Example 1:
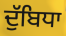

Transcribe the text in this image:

ਦੁੱਬਿਧਾ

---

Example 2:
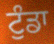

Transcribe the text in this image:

ਟੁੰਡਾ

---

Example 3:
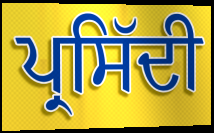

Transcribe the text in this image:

ਪ੍ਰਸਿੱਦੀ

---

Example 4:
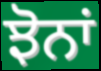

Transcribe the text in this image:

ਝੋਨਾਂ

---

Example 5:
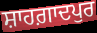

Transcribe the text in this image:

ਸ਼ਾਹਗ਼ਾਦਪੁਰ